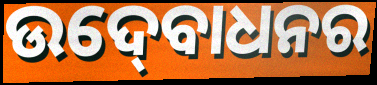
ଉଦ୍‍ବୋଧନର